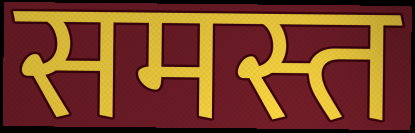
समस्त